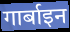
गार्बाइन